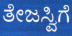
ತೇಜಸ್ವಿಗೆ